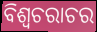
ବିଶ୍ଵଚରାଚର